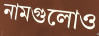
নামগুলোও